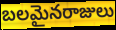
బలమైనరాజులు